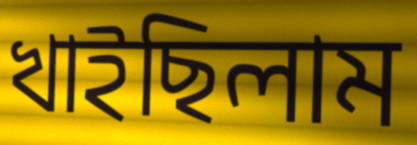
খাইছিলাম